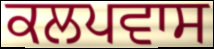
ਕਲਪਵਾਸ